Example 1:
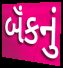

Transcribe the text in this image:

બૅંકનું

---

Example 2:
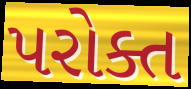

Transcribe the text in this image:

પરોક્ત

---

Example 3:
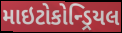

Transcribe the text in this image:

માઇટોકોન્ડ્રિયલ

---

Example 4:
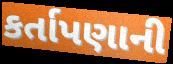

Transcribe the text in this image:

કર્તાપણાની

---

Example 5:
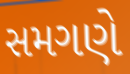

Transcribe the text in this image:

સમગણે